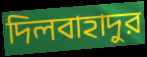
দিলবাহাদুর